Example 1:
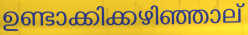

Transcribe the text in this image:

ഉണ്ടാക്കിക്കഴിഞ്ഞാല്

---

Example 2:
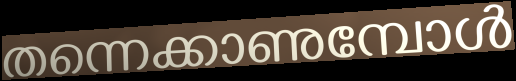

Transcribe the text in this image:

തന്നെക്കാണുമ്പോൾ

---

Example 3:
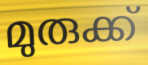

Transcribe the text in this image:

മുരുക്ക്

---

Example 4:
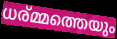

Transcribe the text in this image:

ധര്മ്മത്തെയും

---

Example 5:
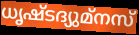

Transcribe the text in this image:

ധൃഷ്ടദ്യുമ്നസ്